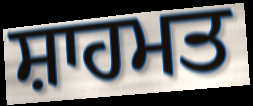
ਸ਼ਾਹਮਤ